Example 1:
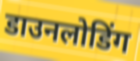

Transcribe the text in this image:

डाउनलोडिंग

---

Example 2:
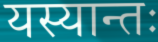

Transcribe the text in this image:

यस्यान्तः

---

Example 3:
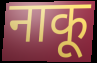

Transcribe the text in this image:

नाकू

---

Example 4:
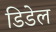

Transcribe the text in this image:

डिडेल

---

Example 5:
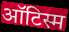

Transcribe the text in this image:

ऑटिस्म